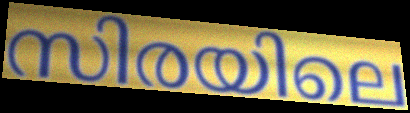
സിരയിലെ